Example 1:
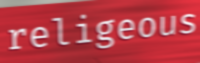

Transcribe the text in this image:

religeous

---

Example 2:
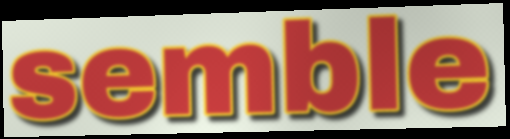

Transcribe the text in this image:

semble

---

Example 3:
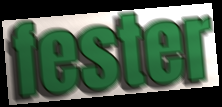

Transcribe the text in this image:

fester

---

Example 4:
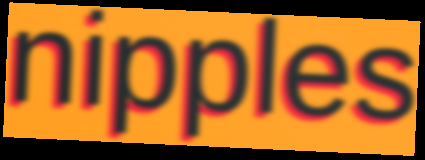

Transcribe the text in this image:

nipples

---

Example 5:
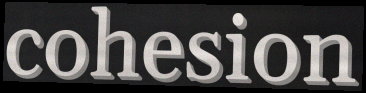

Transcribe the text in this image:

cohesion